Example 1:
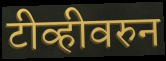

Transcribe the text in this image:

टीव्हीवरुन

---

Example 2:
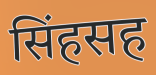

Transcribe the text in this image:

सिंहसह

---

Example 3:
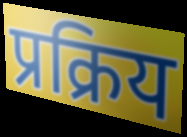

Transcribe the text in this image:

प्रक्रिय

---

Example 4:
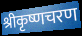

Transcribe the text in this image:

श्रीकृष्णचरण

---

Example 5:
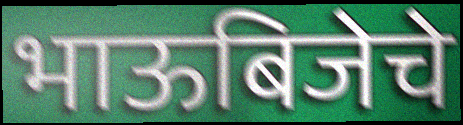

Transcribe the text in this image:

भाऊबिजेचे